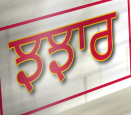
ਝਝਾਰ